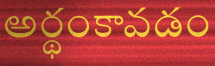
అర్థంకావడం